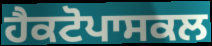
ਹੈਕਟੋਪਾਸਕਲ